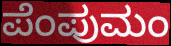
ಪೆಂಪುಮಂ